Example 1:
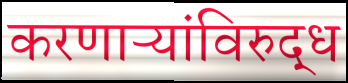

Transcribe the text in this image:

करणाऱ्यांविरुद्ध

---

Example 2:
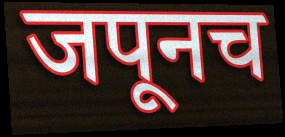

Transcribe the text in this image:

जपूनच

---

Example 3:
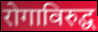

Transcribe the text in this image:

रोगाविरुद्ध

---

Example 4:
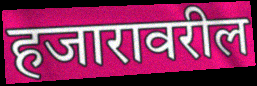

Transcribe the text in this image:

हजारावरील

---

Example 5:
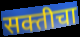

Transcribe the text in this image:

सक्‍तीचा